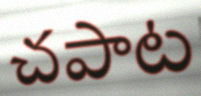
చపాట